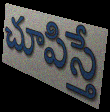
చూపిస్తే